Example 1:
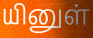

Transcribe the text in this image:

யினுள்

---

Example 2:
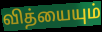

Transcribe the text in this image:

வித்யையும்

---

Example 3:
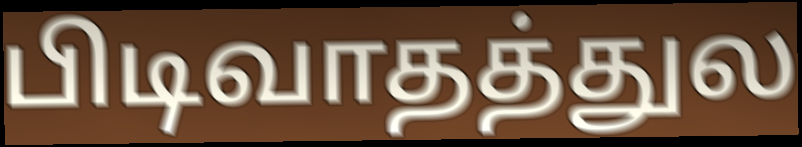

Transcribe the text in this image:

பிடிவாதத்துல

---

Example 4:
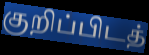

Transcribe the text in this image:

குறிப்பிடத்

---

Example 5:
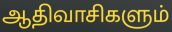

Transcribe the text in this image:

ஆதிவாசிகளும்